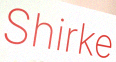
Shirke